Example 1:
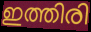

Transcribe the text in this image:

ഇത്തിരി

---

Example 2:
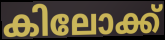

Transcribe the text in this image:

കിലോക്ക്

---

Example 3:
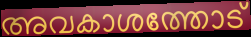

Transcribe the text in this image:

അവകാശത്തോട്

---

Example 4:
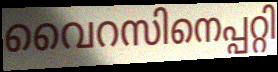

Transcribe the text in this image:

വൈറസിനെപ്പറ്റി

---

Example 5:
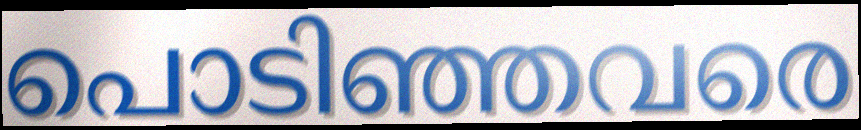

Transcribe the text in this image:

പൊടിഞ്ഞവരെ